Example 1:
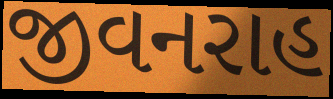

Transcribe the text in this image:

જીવનરાહ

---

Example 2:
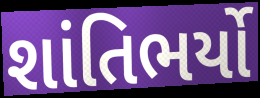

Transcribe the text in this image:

શાંતિભર્યો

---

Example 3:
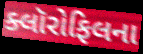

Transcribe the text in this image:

ક્લૉરોફિલના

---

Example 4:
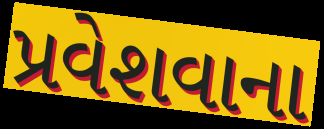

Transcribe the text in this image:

પ્રવેશવાના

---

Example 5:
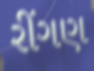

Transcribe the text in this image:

રીંગણ